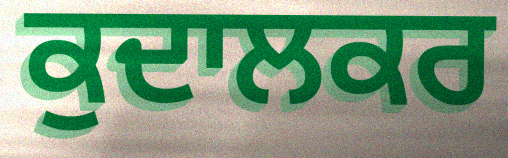
ਕੁਦਾਲਕਰ